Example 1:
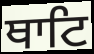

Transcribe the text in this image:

ਥਾਟਿ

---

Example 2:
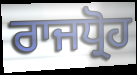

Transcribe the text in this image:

ਰਾਜਧ੍ਰੋਹ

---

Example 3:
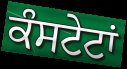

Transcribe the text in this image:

ਕੰਸਟੇਟਾਂ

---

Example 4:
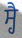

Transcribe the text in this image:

ਸ੍ਹੈ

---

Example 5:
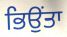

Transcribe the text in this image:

ਭਿਉਂਤਾ